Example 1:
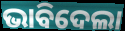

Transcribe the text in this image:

ଭାବିଦେଲା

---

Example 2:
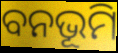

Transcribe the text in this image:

ବନଭୂମି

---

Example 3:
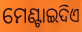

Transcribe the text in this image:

ମେଣ୍ଟାଇଦିଏ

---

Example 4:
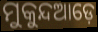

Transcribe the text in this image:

ମୁକୁନ୍ଦଆଡ଼େ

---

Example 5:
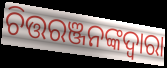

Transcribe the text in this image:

ଚିତ୍ତରଞ୍ଜନଙ୍କଦ୍ଵାରା